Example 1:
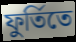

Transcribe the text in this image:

ফুর্তিতে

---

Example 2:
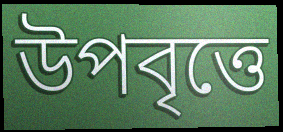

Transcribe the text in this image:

উপবৃত্তে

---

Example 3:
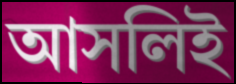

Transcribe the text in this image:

আসলিই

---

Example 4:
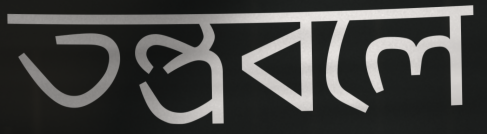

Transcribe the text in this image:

তন্ত্রবলে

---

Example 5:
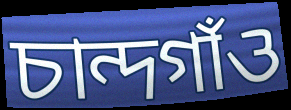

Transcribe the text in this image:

চান্দগাঁও